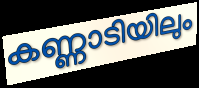
കണ്ണാടിയിലും